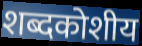
शब्दकोशीय